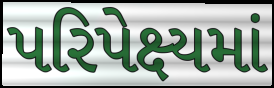
પરિપેક્ષ્યમાં